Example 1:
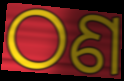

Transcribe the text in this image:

ଠଣ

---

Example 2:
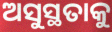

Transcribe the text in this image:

ଅସୁସ୍ଥତାକୁ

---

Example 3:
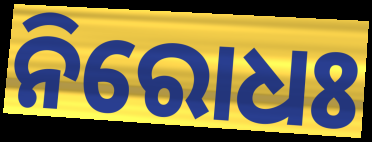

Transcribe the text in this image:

ନିରୋଧଃ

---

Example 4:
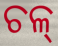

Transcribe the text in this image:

ଚଳ୍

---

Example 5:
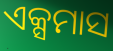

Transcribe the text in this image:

ଏକ୍ସମାସ